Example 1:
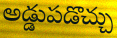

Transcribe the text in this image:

అడ్డుపడొచ్చు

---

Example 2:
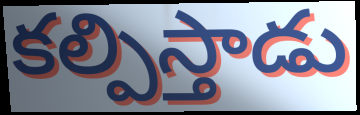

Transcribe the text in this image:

కల్పిస్తాడు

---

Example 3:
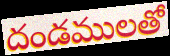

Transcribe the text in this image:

దండములతో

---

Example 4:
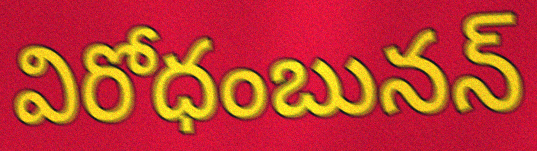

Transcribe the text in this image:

విరోధంబునన్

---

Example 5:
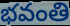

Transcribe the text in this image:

భవంతి